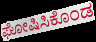
ಘೋಷಿಸಿಕೊಂಡ